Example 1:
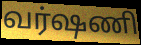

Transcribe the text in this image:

வர்ஷணி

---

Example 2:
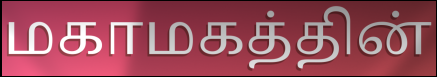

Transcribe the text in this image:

மகாமகத்தின்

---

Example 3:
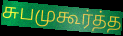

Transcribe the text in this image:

சுபமுகூர்த்த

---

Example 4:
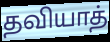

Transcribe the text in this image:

தவியாத்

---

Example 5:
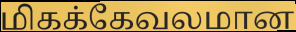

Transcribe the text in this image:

மிகக்கேவலமான